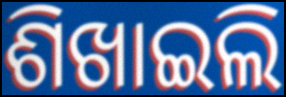
ଶିଖାଇଲି